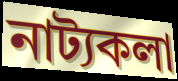
নাট্যকলা